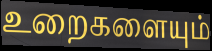
உறைகளையும்